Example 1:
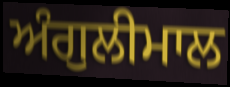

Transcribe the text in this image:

ਅੰਗੁਲੀਮਾਲ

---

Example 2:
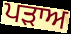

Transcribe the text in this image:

ਪਡ਼ਾਅ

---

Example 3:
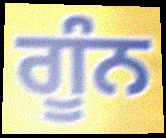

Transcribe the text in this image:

ਗੂੰਨ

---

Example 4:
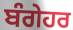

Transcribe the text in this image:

ਬੰਗੇਹਰ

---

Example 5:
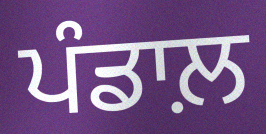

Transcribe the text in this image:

ਪੰਡਾਲ਼